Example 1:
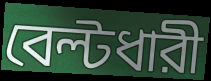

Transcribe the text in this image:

বেল্টধারী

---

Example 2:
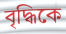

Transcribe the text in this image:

বৃদ্ধিকে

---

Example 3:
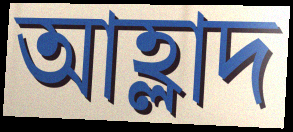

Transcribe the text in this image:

আহ্লাদ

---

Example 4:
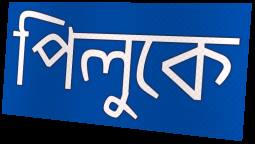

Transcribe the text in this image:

পিলুকে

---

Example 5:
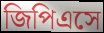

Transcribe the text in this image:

জিপিএসে